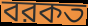
বরকত